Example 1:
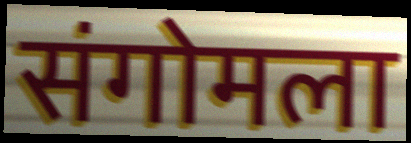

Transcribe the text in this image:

संगोमला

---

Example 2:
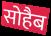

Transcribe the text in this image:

सोहैब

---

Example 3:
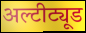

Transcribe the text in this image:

अल्टीट्यूड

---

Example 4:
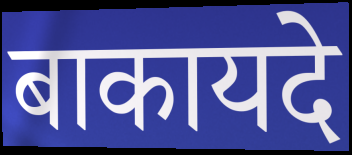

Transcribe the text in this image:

बाकायदे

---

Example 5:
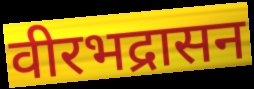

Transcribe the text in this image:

वीरभद्रासन